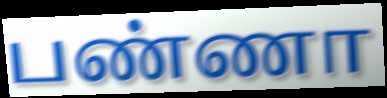
பண்ணா